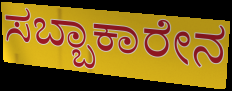
ಸಬ್ಬಾಕಾರೇನ